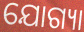
ଯୋଗ୍ୟା